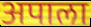
अपाला